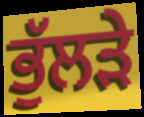
ਭੁੱਲੜੇ